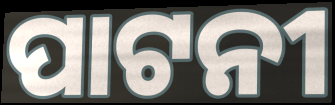
ପାଟନୀ